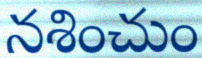
నశించుం